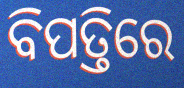
ବିପତ୍ତିରେ